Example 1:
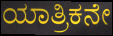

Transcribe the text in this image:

ಯಾತ್ರಿಕನೇ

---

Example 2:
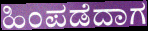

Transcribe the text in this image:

ಹಿಂಪಡೆದಾಗ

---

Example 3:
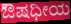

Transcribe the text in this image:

ಔಷಧೀಯ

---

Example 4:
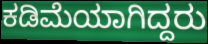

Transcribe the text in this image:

ಕಡಿಮೆಯಾಗಿದ್ದರು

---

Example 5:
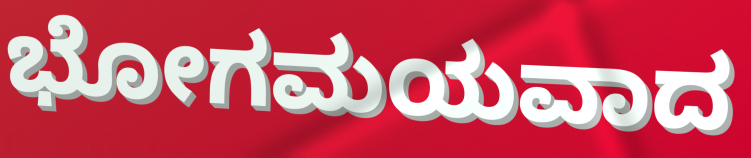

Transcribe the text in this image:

ಭೋಗಮಯವಾದ